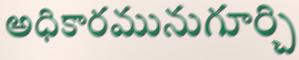
అధికారమునుగూర్చి